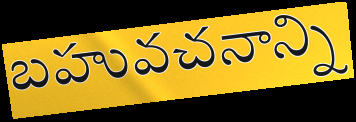
బహువచనాన్ని